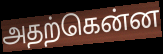
அதற்கென்ன